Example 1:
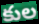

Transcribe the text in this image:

కుల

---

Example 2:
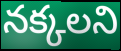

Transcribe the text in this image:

నక్కలని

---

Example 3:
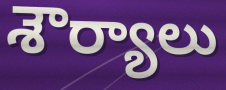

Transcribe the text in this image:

శౌర్యాలు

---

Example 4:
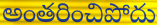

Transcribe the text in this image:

అంతరించిపోదు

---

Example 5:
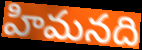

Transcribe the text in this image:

హిమనది